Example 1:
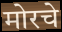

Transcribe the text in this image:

मोरचे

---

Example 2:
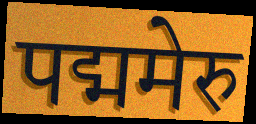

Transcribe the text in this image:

पद्ममेरु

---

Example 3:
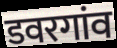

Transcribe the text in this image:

डवरगांव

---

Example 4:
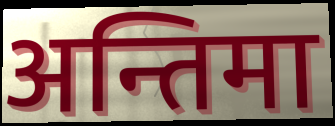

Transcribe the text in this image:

अन्तिमा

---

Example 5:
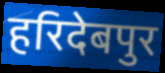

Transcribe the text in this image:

हरिदेबपुर